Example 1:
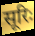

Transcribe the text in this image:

सूरिः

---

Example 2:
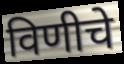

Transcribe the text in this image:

विणीचे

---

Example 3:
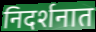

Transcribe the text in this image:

निदर्शनात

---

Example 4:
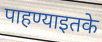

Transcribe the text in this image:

पाहण्याइतके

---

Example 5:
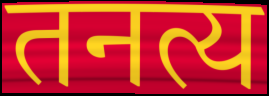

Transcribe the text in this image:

तनत्य